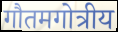
गौतमगोत्रीय